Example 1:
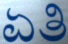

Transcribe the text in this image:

ಏತಿ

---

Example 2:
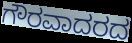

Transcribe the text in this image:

ಗೌರವಾದರದ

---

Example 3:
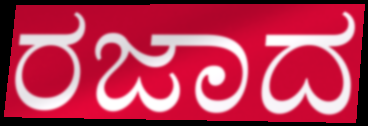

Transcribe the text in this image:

ರಜಾದ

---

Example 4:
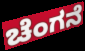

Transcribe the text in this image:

ಚೆಂಗನೆ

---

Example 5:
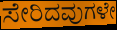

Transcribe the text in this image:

ಸೇರಿದವುಗಳೇ